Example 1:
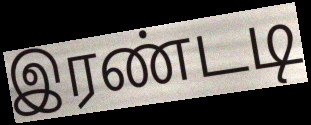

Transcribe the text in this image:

இரண்டடி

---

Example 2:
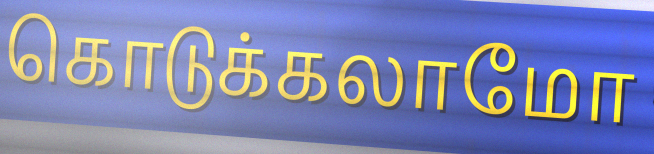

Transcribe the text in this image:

கொடுக்கலாமோ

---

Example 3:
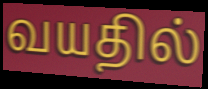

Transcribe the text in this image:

வயதில்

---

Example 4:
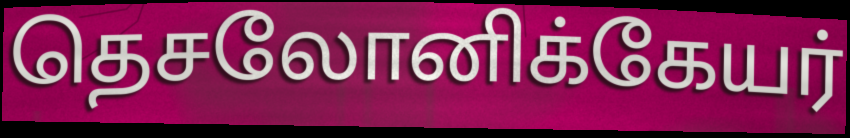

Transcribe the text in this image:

தெசலோனிக்கேயர்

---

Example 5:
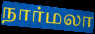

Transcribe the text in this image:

நார்மலா